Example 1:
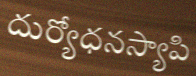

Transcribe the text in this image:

దుర్యోధనస్యాపి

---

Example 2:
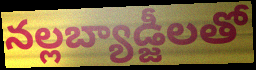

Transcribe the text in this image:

నల్లబ్యాడ్జీలతో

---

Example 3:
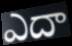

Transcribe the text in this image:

ఎదా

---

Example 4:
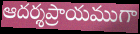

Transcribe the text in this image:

ఆదర్శప్రాయముగా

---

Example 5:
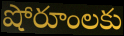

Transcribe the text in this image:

షోరూంలకు